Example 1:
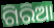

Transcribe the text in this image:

ଗିରିଆ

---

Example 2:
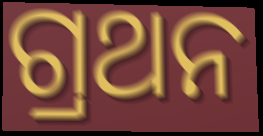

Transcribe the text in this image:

ଗ୍ରଥନ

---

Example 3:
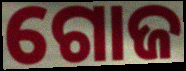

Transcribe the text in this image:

ଗୋଜ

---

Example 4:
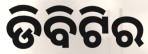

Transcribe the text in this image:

ଡିବିଟିର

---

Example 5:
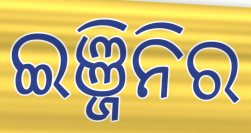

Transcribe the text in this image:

ଇଞ୍ଜିନିର